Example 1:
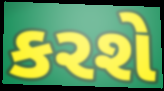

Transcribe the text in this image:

કરશે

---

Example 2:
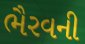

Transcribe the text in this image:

ભૈરવની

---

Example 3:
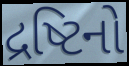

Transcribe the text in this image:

દ્રષ્ટિનો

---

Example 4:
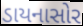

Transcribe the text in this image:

ડાયનાસોર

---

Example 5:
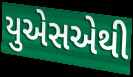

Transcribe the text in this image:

યુએસએથી